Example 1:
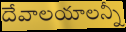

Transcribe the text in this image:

దేవాలయాలన్నీ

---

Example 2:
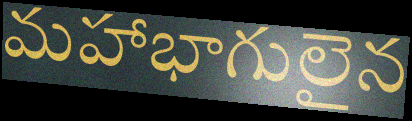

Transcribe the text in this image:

మహాభాగులైన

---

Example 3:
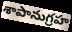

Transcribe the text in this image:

శాపానుగ్రహ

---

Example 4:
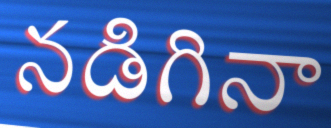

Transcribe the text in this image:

నడిగినా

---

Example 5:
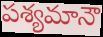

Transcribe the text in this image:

పశ్యమానౌ